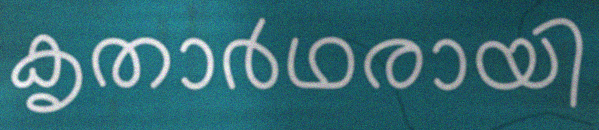
കൃതാർഥരായി